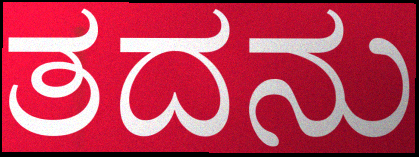
ತದನು